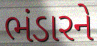
ભંડારને